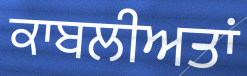
ਕਾਬਲੀਅਤਾਂ